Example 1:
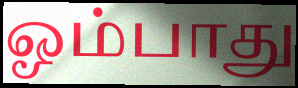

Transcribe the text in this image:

ஓம்பாது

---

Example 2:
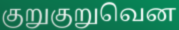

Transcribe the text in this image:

குறுகுறுவென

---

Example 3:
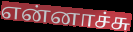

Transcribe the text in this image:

என்னாச்சு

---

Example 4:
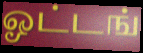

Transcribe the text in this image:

ஓட்டங்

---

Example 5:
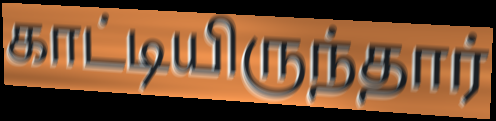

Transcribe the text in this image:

காட்டியிருந்தார்